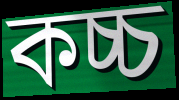
কচ্চ